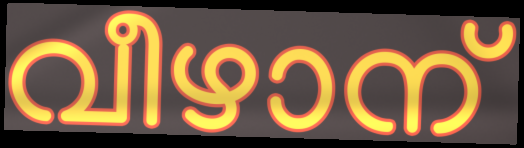
വീഴാന്